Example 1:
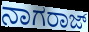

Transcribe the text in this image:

ನಾಗರಾಜ್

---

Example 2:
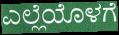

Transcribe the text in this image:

ಎಲ್ಲೆಯೊಳಗೆ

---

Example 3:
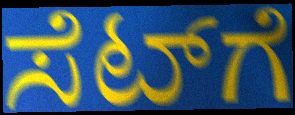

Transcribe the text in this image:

ಸೆಟ್‌ಗೆ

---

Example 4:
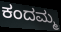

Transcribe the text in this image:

ಕಂದಮ್ಮ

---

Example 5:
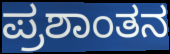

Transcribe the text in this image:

ಪ್ರಶಾಂತನ